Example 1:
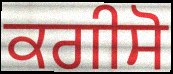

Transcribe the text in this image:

ਕਗੀਸੋ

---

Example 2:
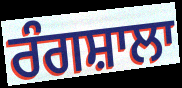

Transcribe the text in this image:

ਰੰਗਸ਼ਾਲਾ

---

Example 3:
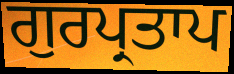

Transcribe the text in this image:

ਗੁਰਪ੍ਰਤਾਪ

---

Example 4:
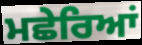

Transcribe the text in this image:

ਮਛੇਰਿਆਂ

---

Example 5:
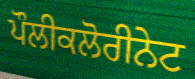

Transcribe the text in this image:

ਪੌਲੀਕਲੋਰੀਨੇਟ